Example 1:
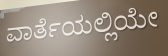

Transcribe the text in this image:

ವಾರ್ತೆಯಲ್ಲಿಯೇ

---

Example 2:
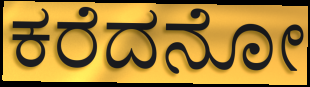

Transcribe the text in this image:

ಕರೆದನೋ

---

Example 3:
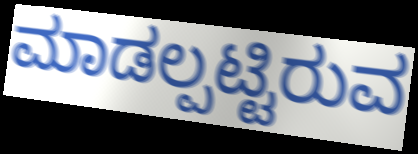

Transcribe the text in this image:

ಮಾಡಲ್ಪಟ್ಟಿರುವ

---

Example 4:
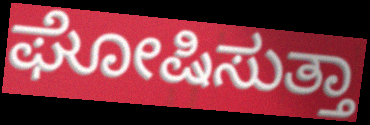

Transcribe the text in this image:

ಘೋಷಿಸುತ್ತಾ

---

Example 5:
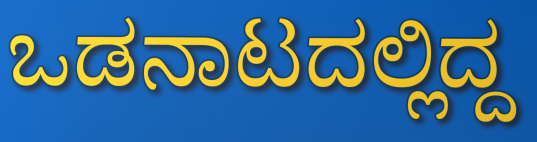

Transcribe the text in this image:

ಒಡನಾಟದಲ್ಲಿದ್ದ